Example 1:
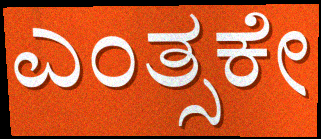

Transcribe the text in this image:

ಎಂತ್ಸಕೇ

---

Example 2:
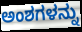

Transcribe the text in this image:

ಅಂಶಗಳನ್ನು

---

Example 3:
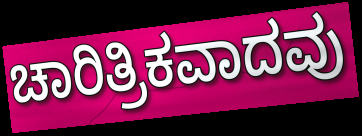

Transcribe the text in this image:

ಚಾರಿತ್ರಿಕವಾದವು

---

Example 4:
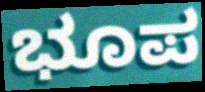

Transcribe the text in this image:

ಭೂಪ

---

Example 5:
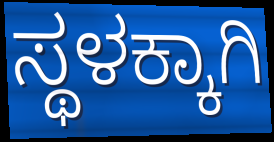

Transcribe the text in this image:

ಸ್ಥಳಕ್ಕಾಗಿ